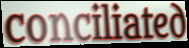
conciliated